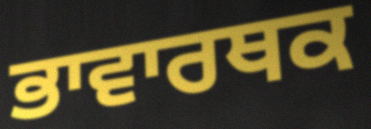
ਭਾਵਾਰਥਕ